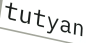
tutyan